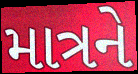
માત્રને